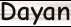
Dayan